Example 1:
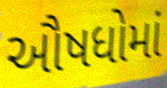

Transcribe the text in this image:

ઔષધોમાં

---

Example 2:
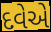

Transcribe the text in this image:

દવેએ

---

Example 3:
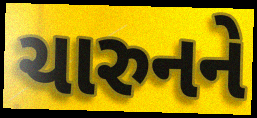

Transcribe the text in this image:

ચારુનને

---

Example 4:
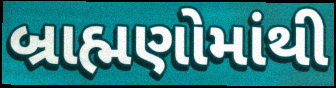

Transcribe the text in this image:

બ્રાહ્મણોમાંથી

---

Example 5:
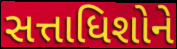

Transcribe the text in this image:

સત્તાધિશોને